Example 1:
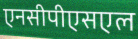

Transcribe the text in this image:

एनसीपीएसएल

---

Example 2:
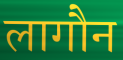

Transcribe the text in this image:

लागौन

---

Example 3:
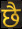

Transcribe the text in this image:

छै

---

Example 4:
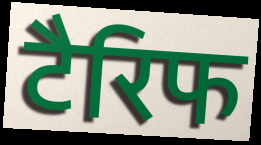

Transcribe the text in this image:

टैरिफ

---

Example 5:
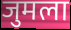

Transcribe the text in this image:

जुमला